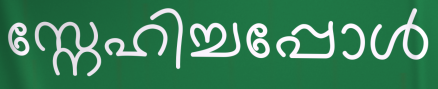
സ്നേഹിച്ചപ്പോൾ